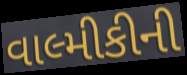
વાલ્મીકીની